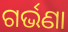
ଗର୍ଭଣା